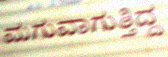
ಮಗುವಾಗುತ್ತಿದ್ದ